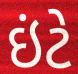
ઇંટે